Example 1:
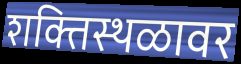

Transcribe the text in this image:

शक्तिस्थळावर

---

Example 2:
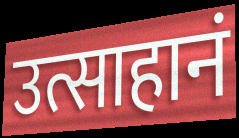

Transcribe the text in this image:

उत्साहानं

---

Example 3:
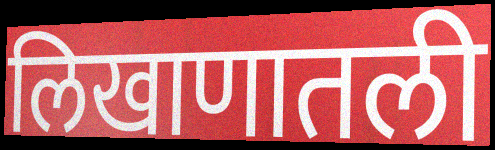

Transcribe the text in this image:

लिखाणातली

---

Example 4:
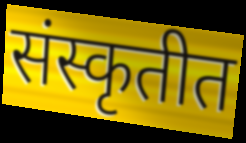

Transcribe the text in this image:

संस्कृतीत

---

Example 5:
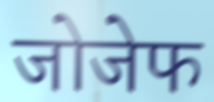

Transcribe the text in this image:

जोजेफ